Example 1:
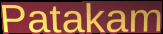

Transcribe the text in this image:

Patakam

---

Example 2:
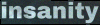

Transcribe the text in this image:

insanity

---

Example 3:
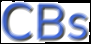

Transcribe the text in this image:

CBs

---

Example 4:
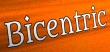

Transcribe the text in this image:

Bicentric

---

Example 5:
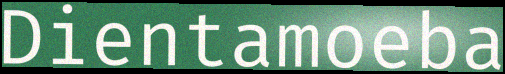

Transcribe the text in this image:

Dientamoeba